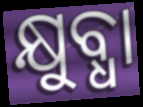
କ୍ଷୁବ୍ଧା